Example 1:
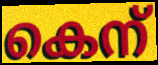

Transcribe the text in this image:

കെന്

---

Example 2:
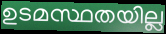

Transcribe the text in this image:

ഉടമസ്ഥതയില്ല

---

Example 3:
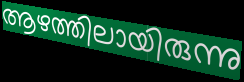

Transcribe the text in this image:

ആഴത്തിലായിരുന്നു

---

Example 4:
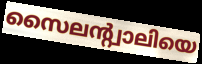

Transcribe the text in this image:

സൈലന്റ്വാലിയെ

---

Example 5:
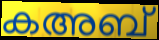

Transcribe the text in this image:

കഅബ്